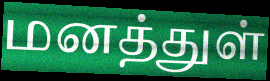
மனத்துள்